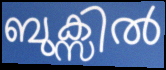
ബുക്സിൽ